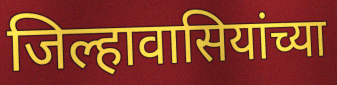
जिल्हावासियांच्या